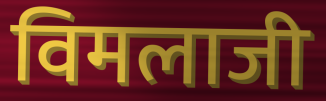
विमलाजी